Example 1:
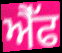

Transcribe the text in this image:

ਐੈੱਫ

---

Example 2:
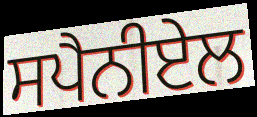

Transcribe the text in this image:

ਸਪੈਨੀਏਲ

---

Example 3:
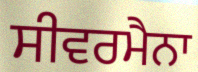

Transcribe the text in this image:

ਸੀਵਰਮੈਨਾ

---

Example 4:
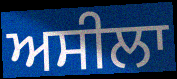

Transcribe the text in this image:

ਅਸੀਲਾ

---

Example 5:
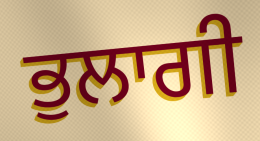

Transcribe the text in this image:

ਭੁਲਾਗੀ